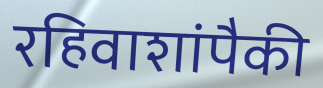
रहिवाशांपैकी